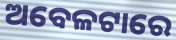
ଅବେଳଟାରେ